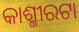
କାଶ୍ମୀରଟା